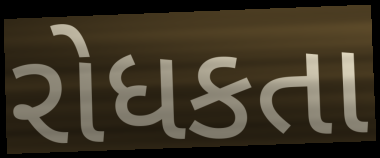
રોધકતા